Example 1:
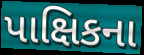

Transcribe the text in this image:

પાક્ષિકના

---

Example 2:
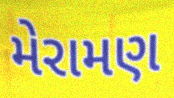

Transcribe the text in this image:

મેરામણ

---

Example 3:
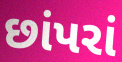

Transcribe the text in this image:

છાંપરાં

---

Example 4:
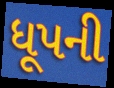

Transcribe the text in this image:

ધૂપની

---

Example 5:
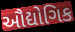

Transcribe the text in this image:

ઔદ્યોગિક